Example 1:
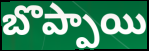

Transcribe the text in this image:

బొప్పాయి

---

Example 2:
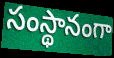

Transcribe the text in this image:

సంస్థానంగా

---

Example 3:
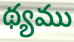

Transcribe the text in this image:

థ్యము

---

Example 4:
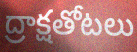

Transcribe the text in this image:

ద్రాక్షతోటలు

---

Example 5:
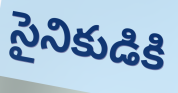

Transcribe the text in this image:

సైనికుడికి